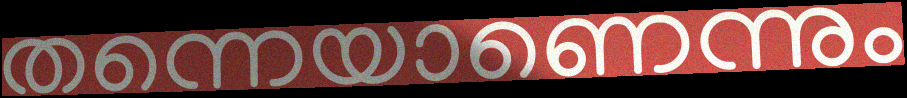
തന്നെയാണെന്നും